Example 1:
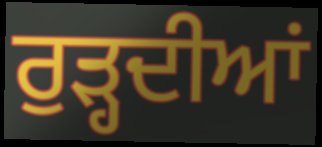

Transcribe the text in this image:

ਰੁੜ੍ਹਦੀਆਂ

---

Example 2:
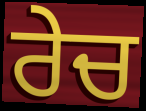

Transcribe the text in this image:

ਰੇਚ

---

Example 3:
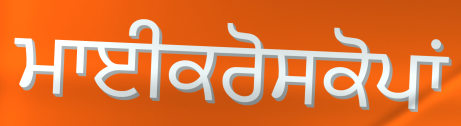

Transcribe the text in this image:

ਮਾਈਕਰੋਸਕੋਪਾਂ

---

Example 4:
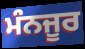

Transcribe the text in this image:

ਮੰਨਜੂਰ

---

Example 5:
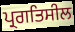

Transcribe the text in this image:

ਪ੍ਰਗਤਿਸੀਲ